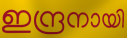
ഇന്ദ്രനായി